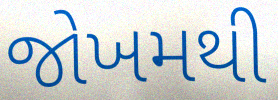
જોખમથી